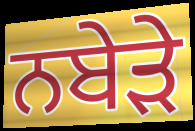
ਨਬੇੜੇ